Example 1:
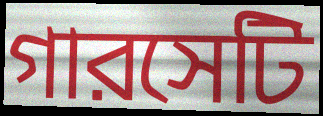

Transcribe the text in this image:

গারসেটি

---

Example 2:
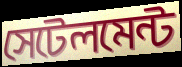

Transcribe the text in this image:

সেটেলমেন্ট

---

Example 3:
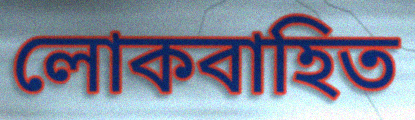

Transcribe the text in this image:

লোকবাহিত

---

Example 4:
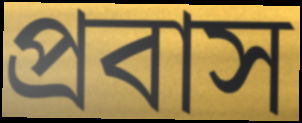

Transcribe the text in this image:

প্রবাস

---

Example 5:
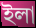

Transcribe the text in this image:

ইলা